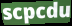
scpcdu